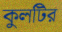
কুলটির